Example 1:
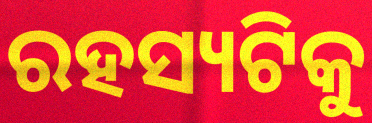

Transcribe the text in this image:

ରହସ୍ୟଟିକୁ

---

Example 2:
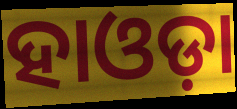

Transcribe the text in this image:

ହାଓଡ଼ା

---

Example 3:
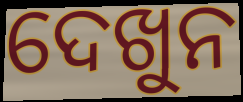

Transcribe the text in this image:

ଦେଖୁନ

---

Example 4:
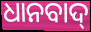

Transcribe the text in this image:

ଧାନବାଦ୍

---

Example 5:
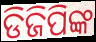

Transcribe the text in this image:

ଡିଜିପିଙ୍କ